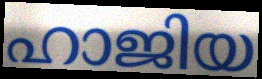
ഹാജിയ